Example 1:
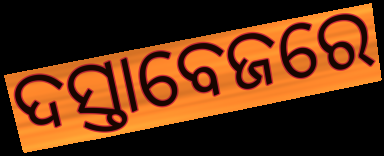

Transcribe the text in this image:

ଦସ୍ତାବେଜରେ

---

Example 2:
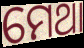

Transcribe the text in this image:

ମେଥା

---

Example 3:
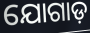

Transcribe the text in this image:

ଯୋଗାଡ଼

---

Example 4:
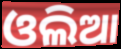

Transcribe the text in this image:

ଓଲିଆ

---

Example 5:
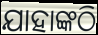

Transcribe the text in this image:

ଯାହାଙ୍କଠି